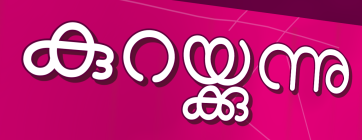
കുറയ്ക്കുന്നു